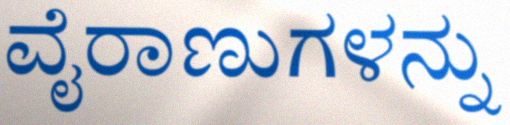
ವೈರಾಣುಗಳನ್ನು